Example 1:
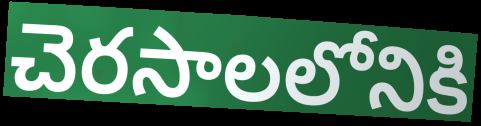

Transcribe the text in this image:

చెరసాలలోనికి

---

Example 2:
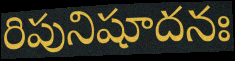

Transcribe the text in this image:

రిపునిషూదనః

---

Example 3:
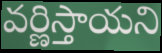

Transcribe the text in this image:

వర్ణిస్తాయని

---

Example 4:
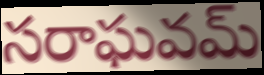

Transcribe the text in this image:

సరాఘవమ్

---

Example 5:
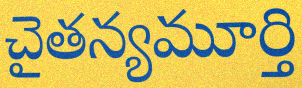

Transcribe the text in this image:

చైతన్యమూర్తి